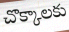
చొక్కాలకు